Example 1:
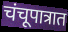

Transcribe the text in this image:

चंचूपात्रात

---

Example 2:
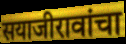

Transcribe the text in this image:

सयाजीरावांचा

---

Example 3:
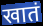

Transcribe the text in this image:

खातं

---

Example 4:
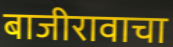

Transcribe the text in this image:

बाजीरावाचा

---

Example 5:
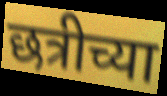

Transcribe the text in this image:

छत्रीच्या